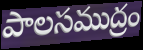
పాలసముద్రం